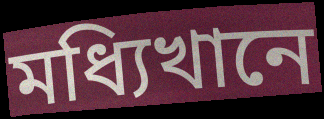
মধ্যিখানে